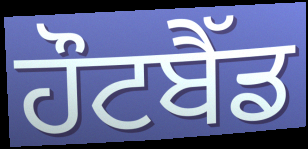
ਹੌਟਬੈੱਡ